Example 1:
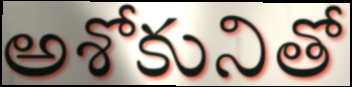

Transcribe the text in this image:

అశోకునితో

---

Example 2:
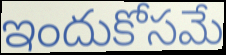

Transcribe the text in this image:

ఇందుకోసమే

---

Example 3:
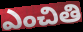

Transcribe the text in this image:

ఎంచితి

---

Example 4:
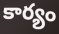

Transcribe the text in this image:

కార్యం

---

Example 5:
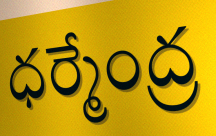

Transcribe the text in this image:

ధర్మేంద్ర